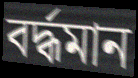
বর্দ্ধমান